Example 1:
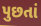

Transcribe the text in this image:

પુછતાં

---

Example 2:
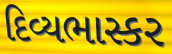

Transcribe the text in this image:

દિવ્યભાસ્કર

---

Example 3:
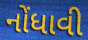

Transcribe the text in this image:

નોંધાવી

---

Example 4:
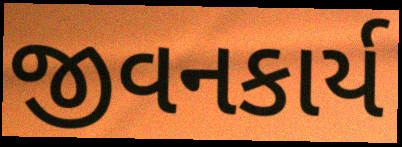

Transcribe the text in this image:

જીવનકાર્ય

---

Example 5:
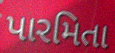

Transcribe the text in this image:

પારમિતા